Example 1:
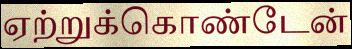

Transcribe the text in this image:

ஏற்றுக்கொண்டேன்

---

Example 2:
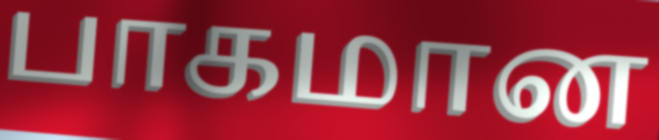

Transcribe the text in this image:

பாகமான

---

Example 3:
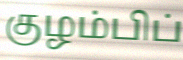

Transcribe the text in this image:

குழம்பிப்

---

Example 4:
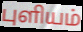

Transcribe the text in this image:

புளியம்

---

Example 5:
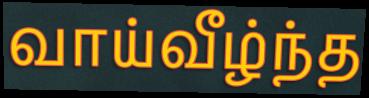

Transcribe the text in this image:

வாய்வீழ்ந்த